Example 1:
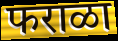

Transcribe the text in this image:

फराळा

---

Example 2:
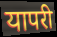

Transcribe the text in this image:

यापरी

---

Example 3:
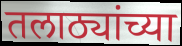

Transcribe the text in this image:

तलाठ्यांच्या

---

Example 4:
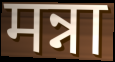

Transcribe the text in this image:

मन्ना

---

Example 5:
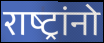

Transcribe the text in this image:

राष्ट्रांनो